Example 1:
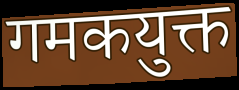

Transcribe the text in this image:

गमकयुक्त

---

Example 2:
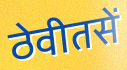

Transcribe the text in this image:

ठेवीतसें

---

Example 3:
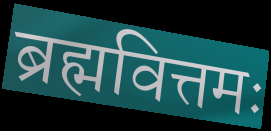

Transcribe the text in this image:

ब्रह्मवित्तमः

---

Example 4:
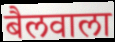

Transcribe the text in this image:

बैलवाला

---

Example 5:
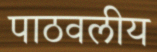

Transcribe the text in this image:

पाठवलीय